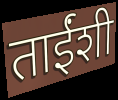
ताईंशी